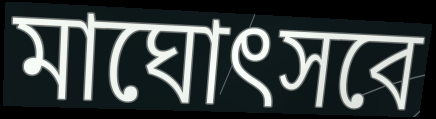
মাঘোৎসবে